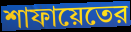
শাফায়েতের